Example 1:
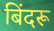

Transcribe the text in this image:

बिंदरू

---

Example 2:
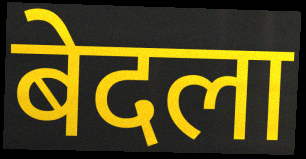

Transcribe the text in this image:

बेदला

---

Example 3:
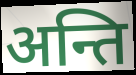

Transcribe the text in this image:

अन्ति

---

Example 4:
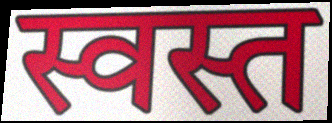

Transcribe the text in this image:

स्वस्त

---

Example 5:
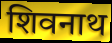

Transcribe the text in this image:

शिवनाथ